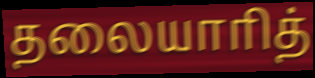
தலையாரித்